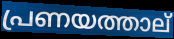
പ്രണയത്താല്